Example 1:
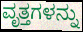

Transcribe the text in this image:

ವೃತ್ತಗಳನ್ನು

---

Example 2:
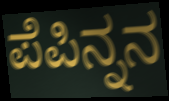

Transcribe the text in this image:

ಪೆಪಿನ್ನನ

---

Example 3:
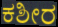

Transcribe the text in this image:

ಕಶೀರ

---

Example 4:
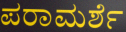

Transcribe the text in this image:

ಪರಾಮರ್ಶೆ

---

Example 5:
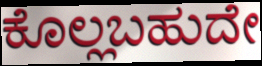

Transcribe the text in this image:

ಕೊಲ್ಲಬಹುದೇ